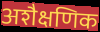
अशैक्षणिक